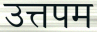
उत्तपम